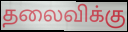
தலைவிக்கு